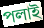
পলাই